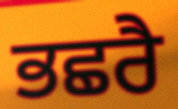
ਭਛਰੈ